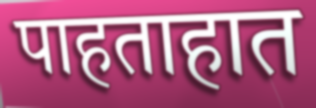
पाहताहात